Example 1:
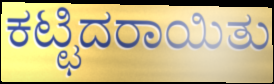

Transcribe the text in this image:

ಕಟ್ಟಿದರಾಯಿತು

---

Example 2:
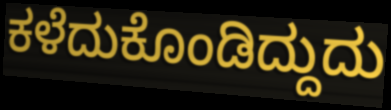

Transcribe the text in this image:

ಕಳೆದುಕೊಂಡಿದ್ದುದು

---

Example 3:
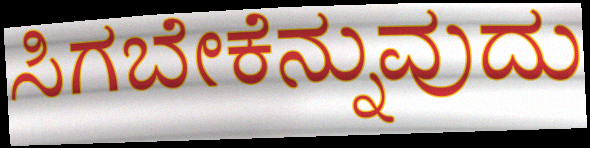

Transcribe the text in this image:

ಸಿಗಬೇಕೆನ್ನುವುದು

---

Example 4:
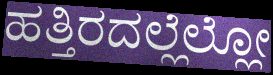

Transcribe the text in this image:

ಹತ್ತಿರದಲ್ಲೆಲ್ಲೋ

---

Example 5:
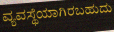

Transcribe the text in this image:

ವ್ಯವಸ್ಥೆಯಾಗಿರಬಹುದು